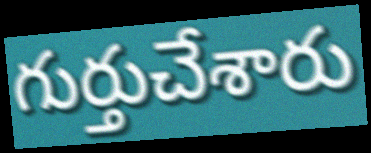
గుర్తుచేశారు